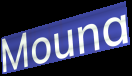
Mouna